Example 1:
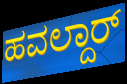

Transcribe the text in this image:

ಹವಲ್ದಾರ್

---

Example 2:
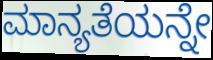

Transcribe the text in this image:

ಮಾನ್ಯತೆಯನ್ನೇ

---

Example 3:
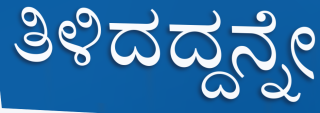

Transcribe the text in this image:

ತಿಳಿದದ್ದನ್ನೇ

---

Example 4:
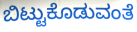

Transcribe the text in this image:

ಬಿಟ್ಟುಕೊಡುವಂತೆ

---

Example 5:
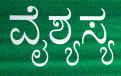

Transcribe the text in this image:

ವೈಶ್ಯಸ್ಯ